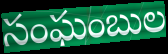
సంఘంబుల